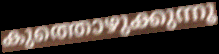
കുത്തൊഴുക്കുന്നൂ